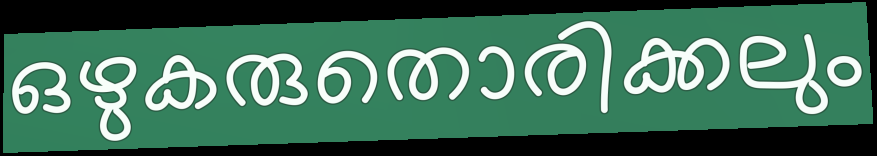
ഒഴുകരുതൊരിക്കലും